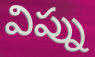
విప్ను